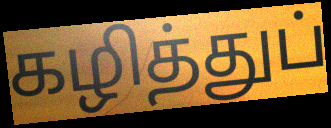
கழித்துப்